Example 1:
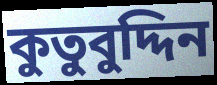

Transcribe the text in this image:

কুতুবুদ্দিন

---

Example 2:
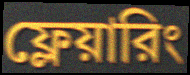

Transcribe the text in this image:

ফ্লেয়ারিং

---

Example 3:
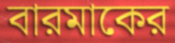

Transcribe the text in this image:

বারমাকের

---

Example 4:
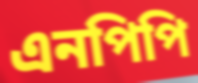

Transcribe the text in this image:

এনপিপি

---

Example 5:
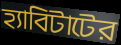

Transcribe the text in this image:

হ্যাবিটাটের